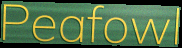
Peafowl